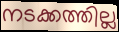
നടക്കത്തില്ല